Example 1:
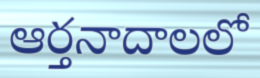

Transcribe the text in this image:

ఆర్తనాదాలలో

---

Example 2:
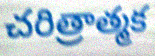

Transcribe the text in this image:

చరిత్రాత్మక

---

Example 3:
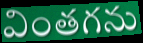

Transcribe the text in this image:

వింతగను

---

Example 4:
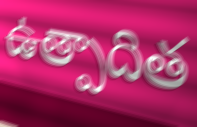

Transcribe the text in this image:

ఉత్పాదిత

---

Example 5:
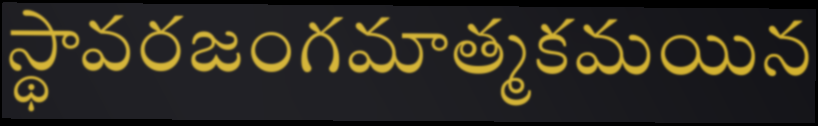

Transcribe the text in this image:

స్థావరజంగమాత్మకమయిన